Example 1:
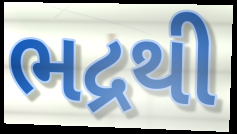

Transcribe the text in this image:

ભદ્રથી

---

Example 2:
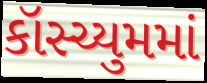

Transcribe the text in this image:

કૉસ્ચ્યુમમાં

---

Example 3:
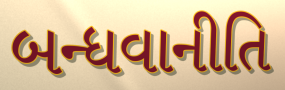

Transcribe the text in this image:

બન્ધવાનીતિ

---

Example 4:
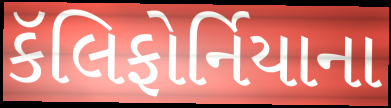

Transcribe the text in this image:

કૅલિફોર્નિયાના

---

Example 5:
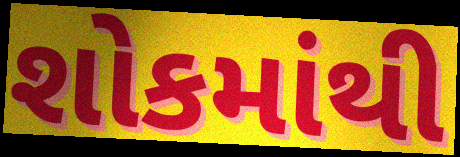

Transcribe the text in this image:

શોકમાંથી